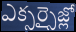
ఎక్సర్సైజ్లో